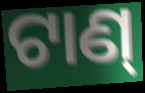
ଟାଣ୍